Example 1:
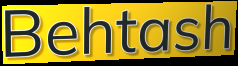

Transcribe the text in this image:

Behtash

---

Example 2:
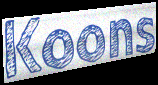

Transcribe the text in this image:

Koons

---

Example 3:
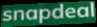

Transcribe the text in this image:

snapdeal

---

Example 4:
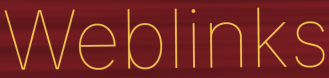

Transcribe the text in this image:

Weblinks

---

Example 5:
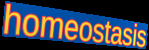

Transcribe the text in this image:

homeostasis